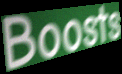
Boosts